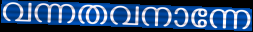
വന്നതവനാന്നേ